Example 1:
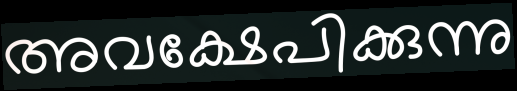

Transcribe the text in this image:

അവക്ഷേപിക്കുന്നു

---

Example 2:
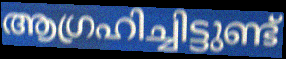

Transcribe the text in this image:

ആഗ്രഹിച്ചിട്ടുണ്ട്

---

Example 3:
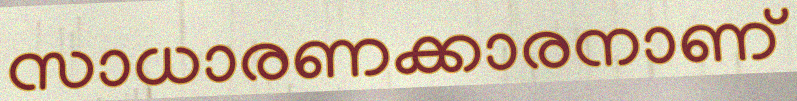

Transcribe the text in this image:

സാധാരണക്കാരനാണ്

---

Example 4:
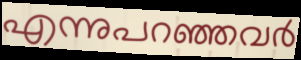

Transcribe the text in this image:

എന്നുപറഞ്ഞവർ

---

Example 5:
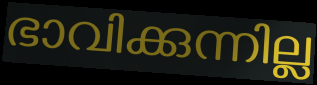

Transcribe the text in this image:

ഭാവിക്കുന്നില്ല